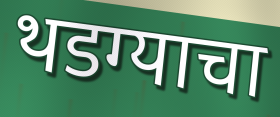
थडग्याचा